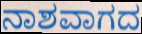
ನಾಶವಾಗದ